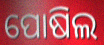
ପୋଷିଲ